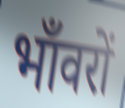
भाँवरों